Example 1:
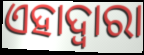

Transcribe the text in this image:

ଏହାଦ୍ୱାରା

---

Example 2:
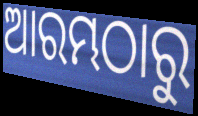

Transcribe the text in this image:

ଆରମ୍ଭଠାରୁ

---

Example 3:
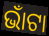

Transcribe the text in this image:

ଭାଁଟା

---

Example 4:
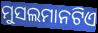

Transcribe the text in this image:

ମୁସଲମାନଟିଏ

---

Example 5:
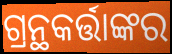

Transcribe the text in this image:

ଗ୍ରନ୍ଥକର୍ତ୍ତାଙ୍କର